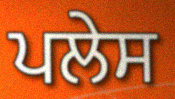
ਪਲੇਸ